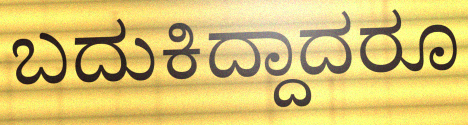
ಬದುಕಿದ್ದಾದರೂ